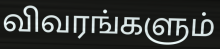
விவரங்களும்